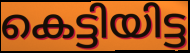
കെട്ടിയിട്ട